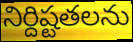
నిర్దిష్టతలను